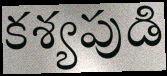
కశ్యపుడి